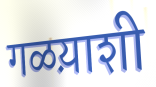
गळय़ाशी